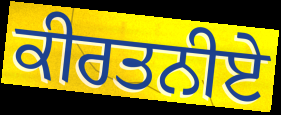
ਕੀਰਤਨੀਏ